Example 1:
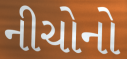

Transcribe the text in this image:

નીચોનો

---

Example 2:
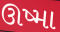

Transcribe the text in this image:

ઊષ્મા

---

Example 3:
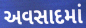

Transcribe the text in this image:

અવસાદમાં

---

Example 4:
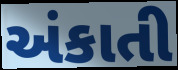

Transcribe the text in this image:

અંકાતી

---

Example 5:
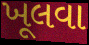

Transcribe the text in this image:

ખૂલવા